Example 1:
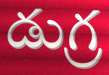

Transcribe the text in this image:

డుగ్ర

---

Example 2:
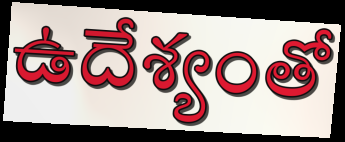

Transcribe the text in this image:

ఉదేశ్యంతో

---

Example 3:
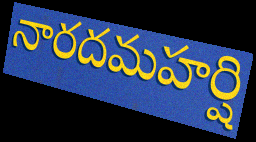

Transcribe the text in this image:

నారదమహర్షి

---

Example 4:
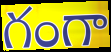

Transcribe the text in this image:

గంగా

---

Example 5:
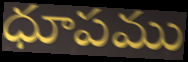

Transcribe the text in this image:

ధూపము